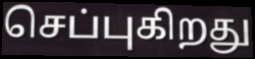
செப்புகிறது